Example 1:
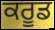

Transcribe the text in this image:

ਕਰੂਡ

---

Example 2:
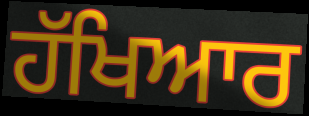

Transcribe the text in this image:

ਹੱਖਿਆਰ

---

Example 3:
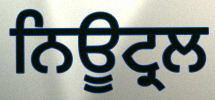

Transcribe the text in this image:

ਨਿਊਟ੍ਰਲ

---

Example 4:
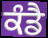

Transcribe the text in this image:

ਕੰਡੈ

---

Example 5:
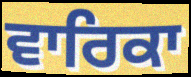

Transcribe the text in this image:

ਵਾਰਿਕਾ